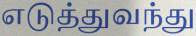
எடுத்துவந்து